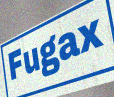
Fugax